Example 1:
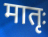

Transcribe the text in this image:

मातृः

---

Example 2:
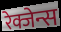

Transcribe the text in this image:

रेक्जेन्स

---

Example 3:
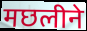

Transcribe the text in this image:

मछलीने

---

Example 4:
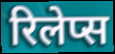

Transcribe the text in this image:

रिलेप्स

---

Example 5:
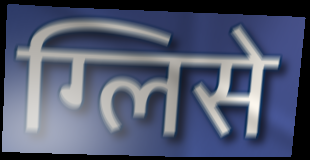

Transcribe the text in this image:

ग्लिसे